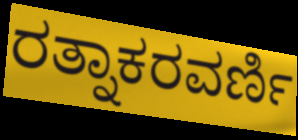
ರತ್ನಾಕರವರ್ಣಿ